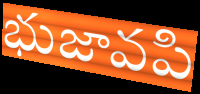
భుజావపి